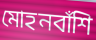
মোহনবাঁশি